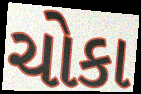
ચોકા